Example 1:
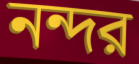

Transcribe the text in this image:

নন্দর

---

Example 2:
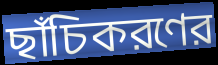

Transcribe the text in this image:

ছাঁচিকরণের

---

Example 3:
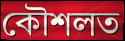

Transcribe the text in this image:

কৌশলত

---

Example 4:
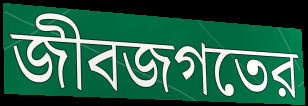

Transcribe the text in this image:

জীবজগতের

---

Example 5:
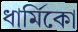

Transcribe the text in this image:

ধার্মিকো